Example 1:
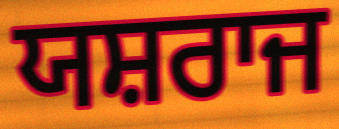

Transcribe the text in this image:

ਯਸ਼ਰਾਜ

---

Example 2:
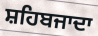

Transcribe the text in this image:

ਸ਼ਹਿਬਜਾਦਾ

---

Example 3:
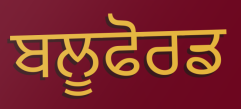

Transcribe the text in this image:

ਬਲੂਫੋਰਡ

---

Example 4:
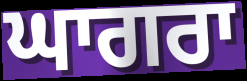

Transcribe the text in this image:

ਘਾਗਰਾ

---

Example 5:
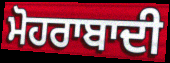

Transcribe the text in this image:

ਮੋਹਰਾਬਾਦੀ